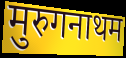
मुरुगनाथम